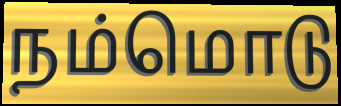
நம்மொடு